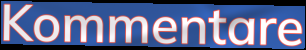
Kommentare